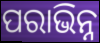
ପରାଭିନ୍ନ